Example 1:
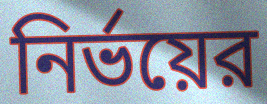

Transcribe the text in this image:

নির্ভয়ের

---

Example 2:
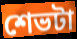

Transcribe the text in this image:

শেভটা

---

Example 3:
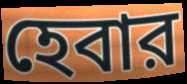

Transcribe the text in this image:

হেবার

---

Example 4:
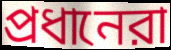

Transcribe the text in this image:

প্রধানেরা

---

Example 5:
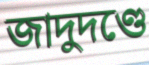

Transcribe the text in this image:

জাদুদণ্ডে